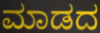
ಮಾಡದ